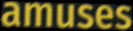
amuses